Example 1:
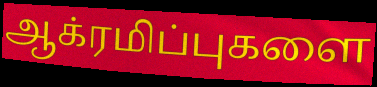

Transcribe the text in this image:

ஆக்ரமிப்புகளை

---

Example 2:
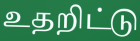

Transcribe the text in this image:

உதறிட்டு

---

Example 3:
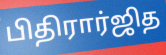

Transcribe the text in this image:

பிதிரார்ஜித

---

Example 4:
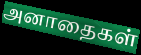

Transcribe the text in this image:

அனாதைகள்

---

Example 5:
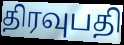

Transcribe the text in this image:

திரவுபதி